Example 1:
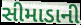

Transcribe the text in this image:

સીમાડાની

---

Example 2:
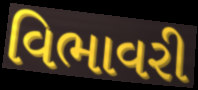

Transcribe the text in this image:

વિભાવરી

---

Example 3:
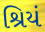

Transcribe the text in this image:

શ્રિયં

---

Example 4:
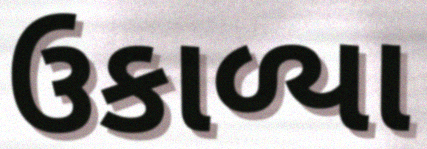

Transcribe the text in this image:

ઉકાળ્યા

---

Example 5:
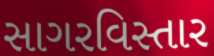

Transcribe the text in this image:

સાગરવિસ્તાર